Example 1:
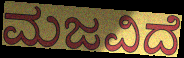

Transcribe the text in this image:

ಮಜವಿದೆ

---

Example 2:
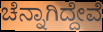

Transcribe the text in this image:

ಚೆನ್ನಾಗಿದ್ದೇವೆ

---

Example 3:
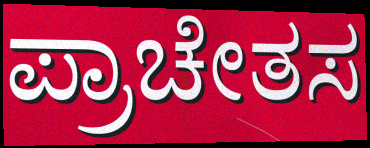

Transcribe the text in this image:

ಪ್ರಾಚೇತಸ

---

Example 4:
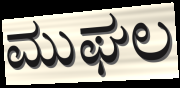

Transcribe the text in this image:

ಮುಘಲ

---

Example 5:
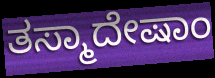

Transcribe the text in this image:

ತಸ್ಮಾದೇಷಾಂ